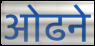
ओढने